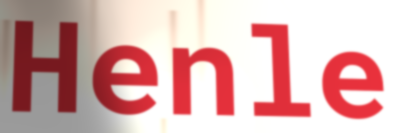
Henle